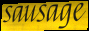
sausage